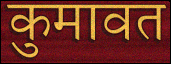
कुमावत